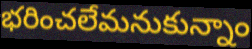
భరించలేమనుకున్నాం